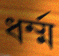
ধৰ্ম্ম